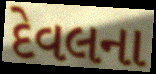
દેવલના